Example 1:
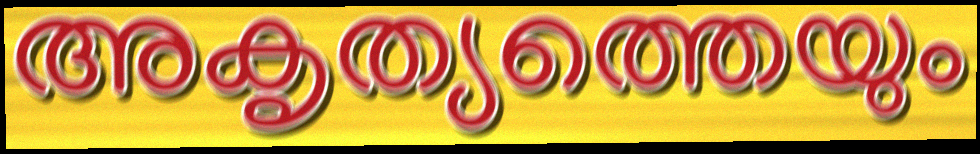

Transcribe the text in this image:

അകൃത്യത്തെയും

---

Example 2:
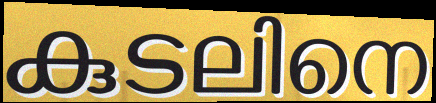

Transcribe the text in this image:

കുടലിനെ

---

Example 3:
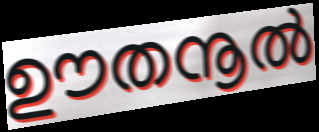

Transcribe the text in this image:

ഊതനൂൽ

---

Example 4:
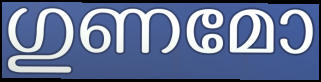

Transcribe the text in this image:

ഗുണമോ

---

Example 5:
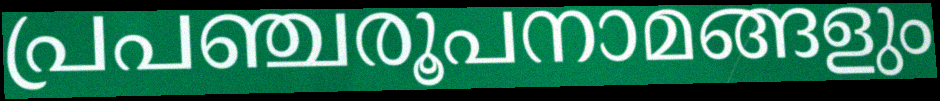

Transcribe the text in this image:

പ്രപഞ്ചരൂപനാമങ്ങളും